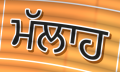
ਮੱਲਾਹ